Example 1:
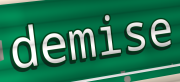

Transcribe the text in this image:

demise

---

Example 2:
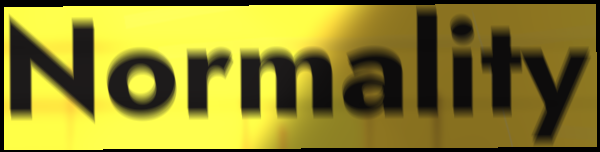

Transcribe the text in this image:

Normality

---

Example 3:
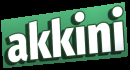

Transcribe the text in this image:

akkini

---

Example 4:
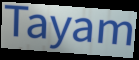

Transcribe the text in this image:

Tayam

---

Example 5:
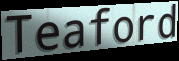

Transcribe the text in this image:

Teaford